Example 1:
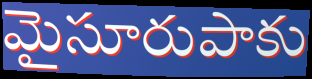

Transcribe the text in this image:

మైసూరుపాకు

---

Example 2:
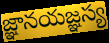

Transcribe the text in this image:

జ్ఞానయజ్ఞస్య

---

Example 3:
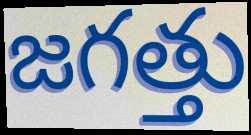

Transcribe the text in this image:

జగత్తు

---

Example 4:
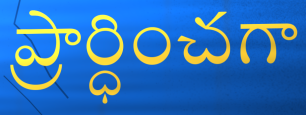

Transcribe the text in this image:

ప్రార్ధించగా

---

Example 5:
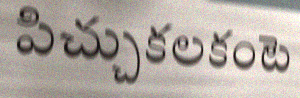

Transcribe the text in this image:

పిచ్చుకలకంటె